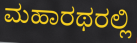
ಮಹಾರಥರಲ್ಲಿ